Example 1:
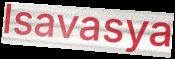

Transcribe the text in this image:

Isavasya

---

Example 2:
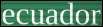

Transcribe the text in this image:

ecuador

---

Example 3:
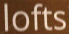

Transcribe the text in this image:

lofts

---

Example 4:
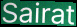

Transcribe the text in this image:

Sairat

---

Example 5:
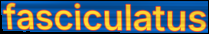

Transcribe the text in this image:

fasciculatus